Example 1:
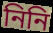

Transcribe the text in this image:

নিনি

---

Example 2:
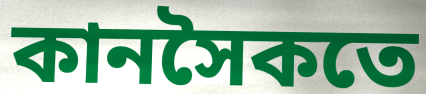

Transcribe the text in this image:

কানসৈকতে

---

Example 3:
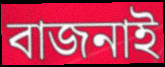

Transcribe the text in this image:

বাজনাই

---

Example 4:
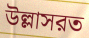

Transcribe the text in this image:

উল্লাসরত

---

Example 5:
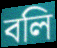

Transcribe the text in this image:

বলি